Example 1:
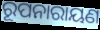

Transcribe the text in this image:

ରୂପନାରାୟଣ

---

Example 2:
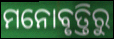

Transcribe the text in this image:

ମନୋବୃତ୍ତିରୁ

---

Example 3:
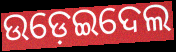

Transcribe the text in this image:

ଉଡ଼େଇଦେଲ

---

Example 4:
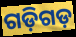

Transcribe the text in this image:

ଗଡ଼ିଗଡ଼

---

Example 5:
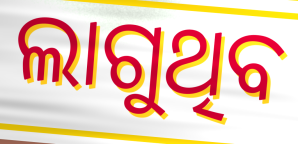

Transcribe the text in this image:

ଲାଗୁଥିବ